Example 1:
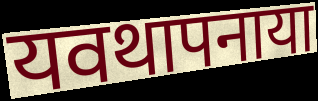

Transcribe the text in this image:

यवथापनाया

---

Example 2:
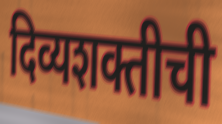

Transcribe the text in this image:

दिव्यशक्तीची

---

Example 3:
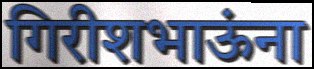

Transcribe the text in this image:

गिरीशभाऊंना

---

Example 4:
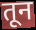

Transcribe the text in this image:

तून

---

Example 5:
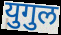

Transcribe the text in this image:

युगुल